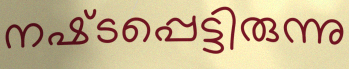
നഷ്‌ടപ്പെട്ടിരുന്നു